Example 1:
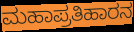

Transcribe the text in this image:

ಮಹಾಪ್ರತಿಹಾರನ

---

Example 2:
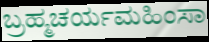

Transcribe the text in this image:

ಬ್ರಹ್ಮಚರ್ಯಮಹಿಂಸಾ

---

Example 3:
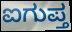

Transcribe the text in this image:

ಐಗುಪ್ತ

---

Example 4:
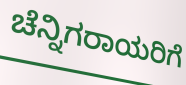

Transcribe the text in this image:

ಚೆನ್ನಿಗರಾಯರಿಗೆ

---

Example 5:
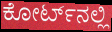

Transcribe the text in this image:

ಕೋರ್ಟ್‌ನಲ್ಲಿ